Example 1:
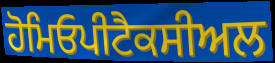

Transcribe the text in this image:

ਹੋਮਿਓਪੀਟੈਕਸੀਅਲ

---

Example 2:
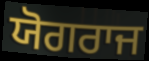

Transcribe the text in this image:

ਯੋਗਰਾਜ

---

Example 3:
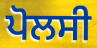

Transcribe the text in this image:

ਪੋਲਸੀ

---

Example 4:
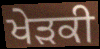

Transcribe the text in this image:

ਖੇੜਕੀ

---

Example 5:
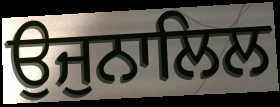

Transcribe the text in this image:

ਉਜੁਨਾਲਿਲ